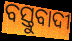
ବସ୍ତୁବାଦୀ